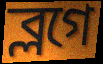
ব্লগে